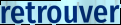
retrouver